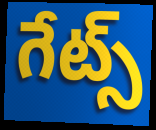
గేట్స్